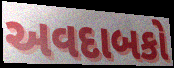
અવદાબકો